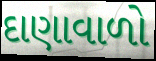
દાણાવાળો